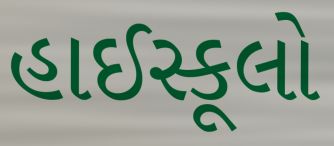
હાઈસ્કૂલો